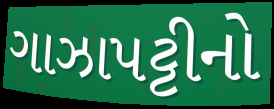
ગાઝાપટ્ટીનો